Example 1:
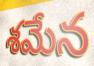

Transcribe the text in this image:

శమేన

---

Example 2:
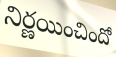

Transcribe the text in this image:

నిర్ణయించిందో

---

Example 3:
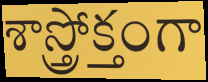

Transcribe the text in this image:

శాస్త్రోక్తంగా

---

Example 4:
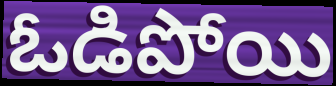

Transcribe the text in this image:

ఓడిపోయి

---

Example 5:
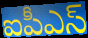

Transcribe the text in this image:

ఐపీఎస్